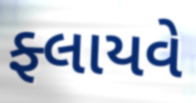
ફ્લાયવે